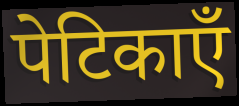
पेटिकाएँ